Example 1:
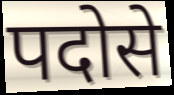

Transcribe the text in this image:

पदोसे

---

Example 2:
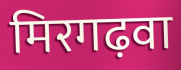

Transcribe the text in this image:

मिरगढ़वा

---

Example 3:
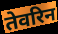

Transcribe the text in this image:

तेवरिन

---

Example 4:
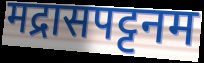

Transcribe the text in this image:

मद्रासपट्टनम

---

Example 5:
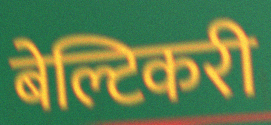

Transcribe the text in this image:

बेल्टिकरी